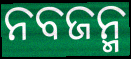
ନବଜନ୍ମ